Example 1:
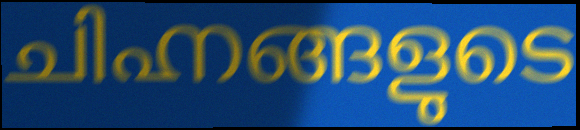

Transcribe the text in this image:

ചിഹ്നങ്ങളുടെ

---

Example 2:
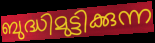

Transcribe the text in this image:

ബുദ്ധിമുട്ടിക്കുന്ന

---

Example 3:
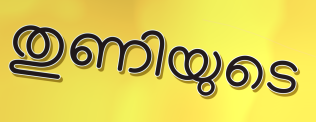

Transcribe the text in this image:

തുണിയുടെ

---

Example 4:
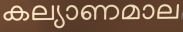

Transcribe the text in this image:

കല്യാണമാല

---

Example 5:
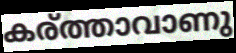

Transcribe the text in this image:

കര്ത്താവാണു